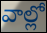
వాల్లో